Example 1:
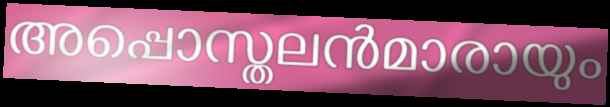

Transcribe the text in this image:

അപ്പൊസ്തലൻമാരായും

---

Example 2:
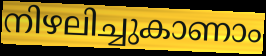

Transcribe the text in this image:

നിഴലിച്ചുകാണാം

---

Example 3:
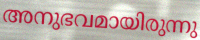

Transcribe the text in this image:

അനുഭവമായിരുന്നു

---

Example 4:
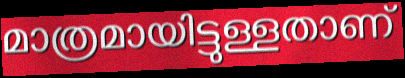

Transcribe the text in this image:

മാത്രമായിട്ടുള്ളതാണ്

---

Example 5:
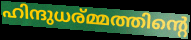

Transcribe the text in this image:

ഹിന്ദുധര്മ്മത്തിന്റെ